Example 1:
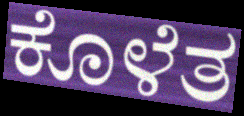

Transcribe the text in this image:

ಕೊಳೆತ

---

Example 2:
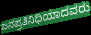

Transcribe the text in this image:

ಜನಪ್ರತಿನಿಧಿಯಾದವರು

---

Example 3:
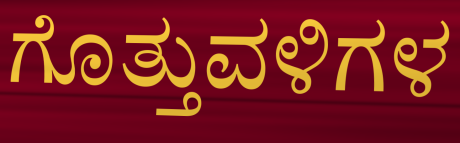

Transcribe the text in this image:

ಗೊತ್ತುವಳಿಗಳ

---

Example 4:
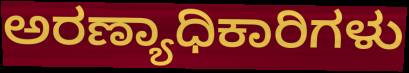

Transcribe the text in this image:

ಅರಣ್ಯಾಧಿಕಾರಿಗಳು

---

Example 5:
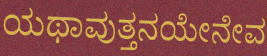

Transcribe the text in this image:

ಯಥಾವುತ್ತನಯೇನೇವ